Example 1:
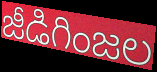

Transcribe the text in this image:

జీడిగింజల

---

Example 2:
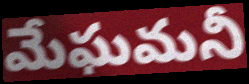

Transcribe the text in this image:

మేఘమనీ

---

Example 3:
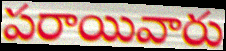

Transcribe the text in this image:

పరాయివారు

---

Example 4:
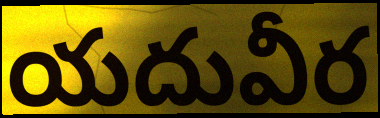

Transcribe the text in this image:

యదువీర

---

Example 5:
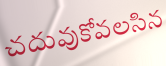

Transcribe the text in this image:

చదువుకోవలసిన